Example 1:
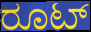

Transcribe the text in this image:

ರೂಟ್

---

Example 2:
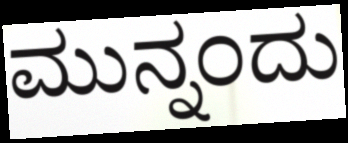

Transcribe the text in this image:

ಮುನ್ನಂದು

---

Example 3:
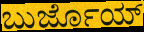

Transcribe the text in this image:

ಬುರ್ಜೊಯ್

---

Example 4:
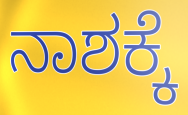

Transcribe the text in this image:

ನಾಶಕ್ಕೆ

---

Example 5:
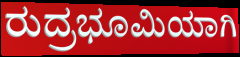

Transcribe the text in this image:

ರುದ್ರಭೂಮಿಯಾಗಿ